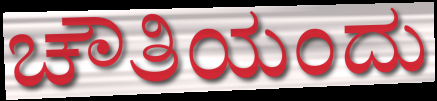
ಚೌತಿಯಂದು